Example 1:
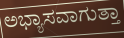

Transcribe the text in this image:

ಅಭ್ಯಾಸವಾಗುತ್ತಾ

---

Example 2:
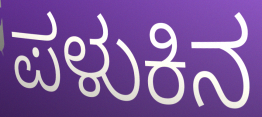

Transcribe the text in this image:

ಪಳುಕಿನ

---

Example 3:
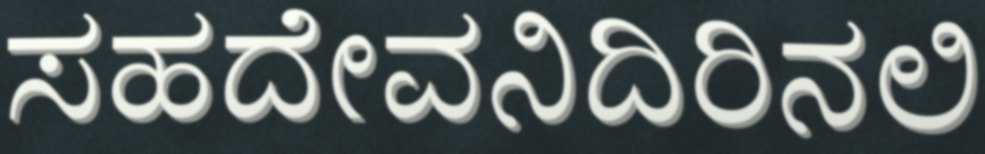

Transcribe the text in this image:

ಸಹದೇವನಿದಿರಿನಲಿ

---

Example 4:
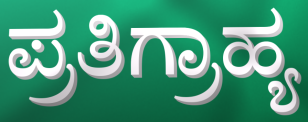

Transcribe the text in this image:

ಪ್ರತಿಗ್ರಾಹ್ಯ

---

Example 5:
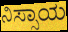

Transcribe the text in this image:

ನಿಸ್ಸಾಯ